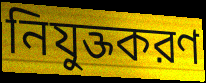
নিযুক্তকরণ